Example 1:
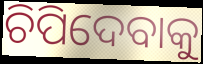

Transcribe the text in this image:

ଚିପିଦେବାକୁ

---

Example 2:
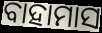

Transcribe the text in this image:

ବାହାମାସ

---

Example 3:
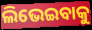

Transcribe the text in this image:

ଲିଭେଇବାକୁ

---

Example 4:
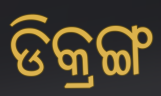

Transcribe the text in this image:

ଡିକ୍ରଙ୍ଗ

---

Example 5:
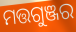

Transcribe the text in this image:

ମତ୍ତଗୁଞ୍ଜର